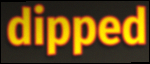
dipped